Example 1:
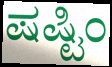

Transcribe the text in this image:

ಷಷ್ಟಿಂ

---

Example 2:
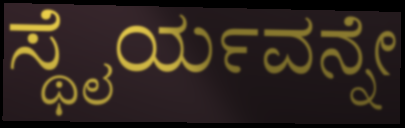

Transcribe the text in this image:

ಸ್ಥೈರ್ಯವನ್ನೇ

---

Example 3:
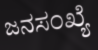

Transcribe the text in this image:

ಜನಸಂಖ್ಯೆ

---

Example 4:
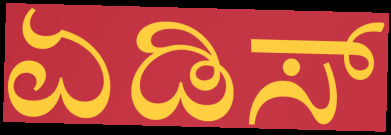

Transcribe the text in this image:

ಏಡಿಸ್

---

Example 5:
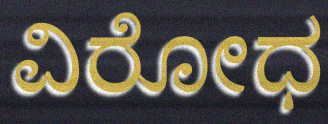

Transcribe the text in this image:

ವಿರೋಧ